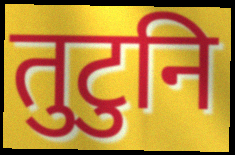
तुटुनि